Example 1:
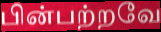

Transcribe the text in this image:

பின்பற்றவே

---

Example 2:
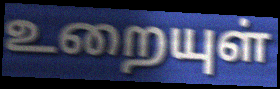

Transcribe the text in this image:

உறையுள்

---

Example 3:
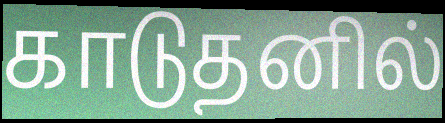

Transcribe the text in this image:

காடுதனில்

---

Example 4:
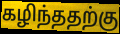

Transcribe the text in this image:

கழிந்ததற்கு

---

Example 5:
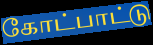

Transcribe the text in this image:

கோட்பாட்டு